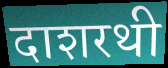
दाशरथी